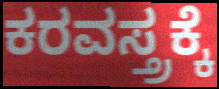
ಕರವಸ್ತ್ರಕ್ಕೆ